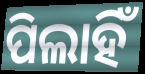
ପିଲାହିଁ